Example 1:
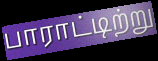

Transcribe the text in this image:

பாராட்டிற்று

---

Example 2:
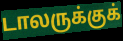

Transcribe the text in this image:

டாலருக்குக்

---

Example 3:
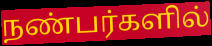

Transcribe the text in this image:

நண்பர்களில்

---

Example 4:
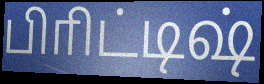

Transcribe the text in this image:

பிரிட்டிஷ்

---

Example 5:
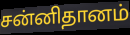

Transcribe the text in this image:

சன்னிதானம்